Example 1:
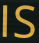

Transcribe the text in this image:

IS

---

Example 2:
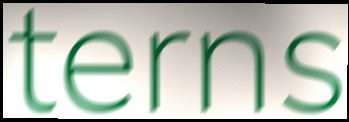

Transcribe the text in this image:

terns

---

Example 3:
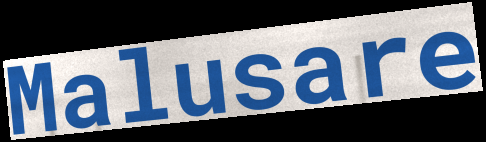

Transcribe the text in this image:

Malusare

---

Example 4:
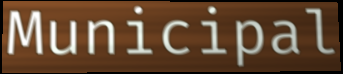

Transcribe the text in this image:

Municipal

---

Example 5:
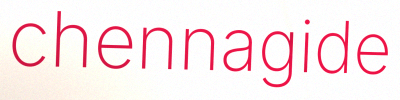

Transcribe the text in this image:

chennagide